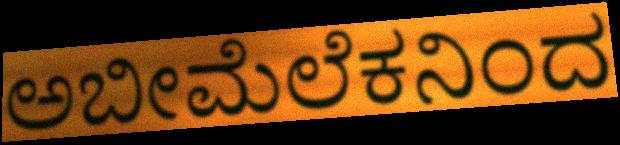
ಅಬೀಮೆಲೆಕನಿಂದ